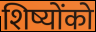
शिष्योंको